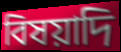
বিষয়াদি